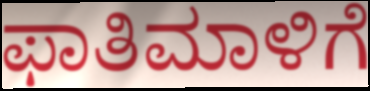
ಫಾತಿಮಾಳಿಗೆ